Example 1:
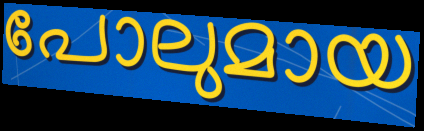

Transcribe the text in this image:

പോലുമായ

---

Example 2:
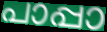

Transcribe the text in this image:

പാപ്പാ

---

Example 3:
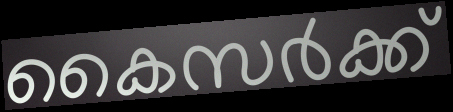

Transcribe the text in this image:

കൈസർക്ക്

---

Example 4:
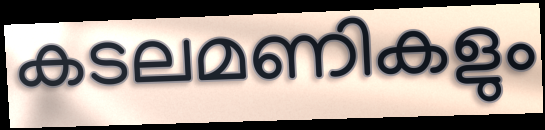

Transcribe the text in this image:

കടലമണികളും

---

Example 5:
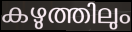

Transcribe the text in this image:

കഴുത്തിലും